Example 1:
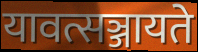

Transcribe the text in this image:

यावत्सञ्जायते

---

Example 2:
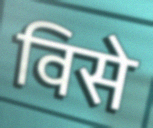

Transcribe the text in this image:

विसे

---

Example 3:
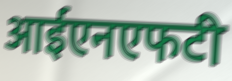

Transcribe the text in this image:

आईएनएफटी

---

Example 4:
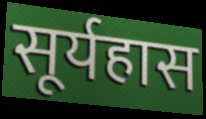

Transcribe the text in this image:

सूर्यहास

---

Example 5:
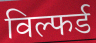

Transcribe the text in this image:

विल्फर्ड